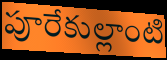
పూరేకుల్లాంటి